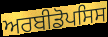
ਅਰਬੀਡੋਪਸਿਸ